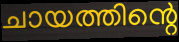
ചായത്തിന്റെ